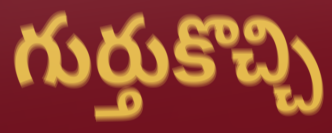
గుర్తుకొచ్చి